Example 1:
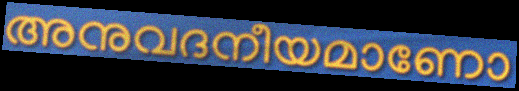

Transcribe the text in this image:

അനുവദനീയമാണോ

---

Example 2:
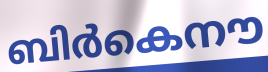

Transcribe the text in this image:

ബിർകെനൗ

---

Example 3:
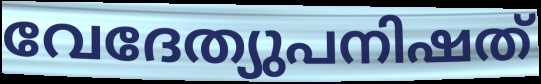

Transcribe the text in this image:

വേദേത്യുപനിഷത്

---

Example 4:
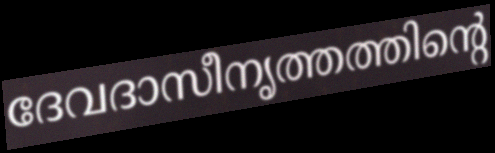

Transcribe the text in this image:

ദേവദാസീനൃത്തത്തിന്റെ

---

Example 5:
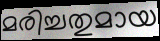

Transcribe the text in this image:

മരിച്ചതുമായ